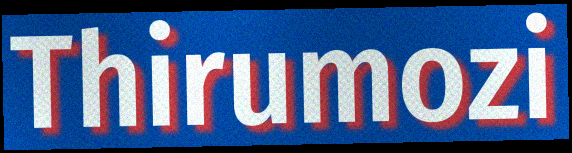
Thirumozi